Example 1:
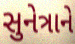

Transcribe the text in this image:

સુનેત્રાને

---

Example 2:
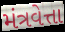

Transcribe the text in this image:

મંત્રવેત્તા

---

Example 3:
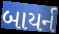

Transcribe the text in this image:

બાયર્ન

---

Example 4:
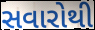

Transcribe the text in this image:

સવારોથી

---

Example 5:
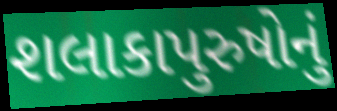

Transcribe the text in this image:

શલાકાપુરુષોનું